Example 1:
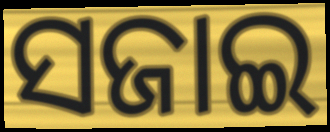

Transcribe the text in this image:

ସଜାଇ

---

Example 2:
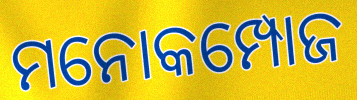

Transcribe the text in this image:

ମନୋକମ୍ପୋଜ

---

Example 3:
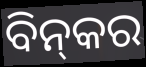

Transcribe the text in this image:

ବିନ୍‌କର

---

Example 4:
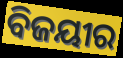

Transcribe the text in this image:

ବିଜୟୀର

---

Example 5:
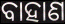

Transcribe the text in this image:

ବାହାଣ